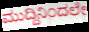
ಮುದ್ದಿನಿಂದಲೇ